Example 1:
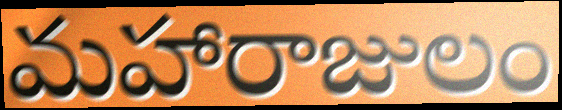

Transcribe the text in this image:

మహారాజులం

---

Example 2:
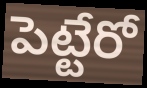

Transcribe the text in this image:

పెట్టేరో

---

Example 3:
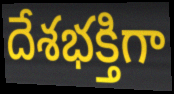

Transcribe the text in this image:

దేశభక్తిగా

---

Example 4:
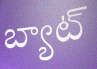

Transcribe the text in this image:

బ్యాట్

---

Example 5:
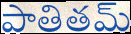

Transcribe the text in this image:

పాతితమ్